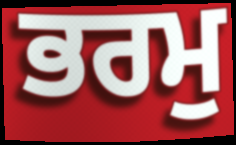
ਭਰਮੁ